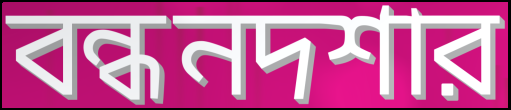
বন্ধনদশার